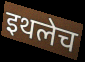
इथलेच